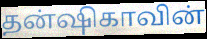
தன்ஷிகாவின்